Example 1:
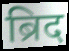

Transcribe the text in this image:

ब्रिद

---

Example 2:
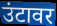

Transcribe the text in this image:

उंटावर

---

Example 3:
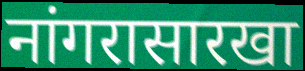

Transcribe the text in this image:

नांगरासारखा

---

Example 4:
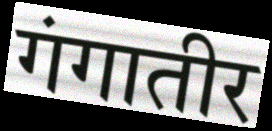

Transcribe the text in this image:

गंगातीर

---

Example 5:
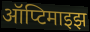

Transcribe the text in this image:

ऑप्टिमाइझ